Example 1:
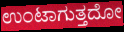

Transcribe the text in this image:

ಉಂಟಾಗುತ್ತದೋ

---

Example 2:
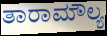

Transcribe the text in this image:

ತಾರಾಮೌಲ್ಯ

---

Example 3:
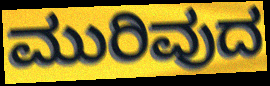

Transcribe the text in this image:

ಮುರಿವುದ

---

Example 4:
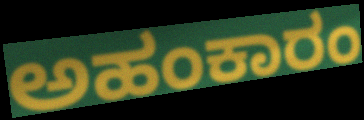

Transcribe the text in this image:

ಅಹಂಕಾರಂ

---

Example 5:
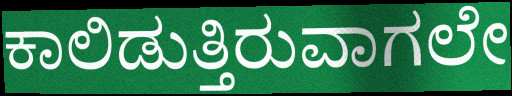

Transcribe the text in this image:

ಕಾಲಿಡುತ್ತಿರುವಾಗಲೇ